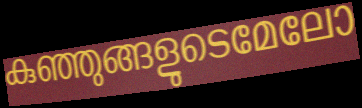
കുഞ്ഞുങ്ങളുടെമേലോ